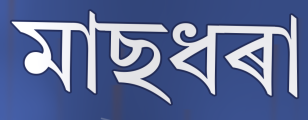
মাছধৰা